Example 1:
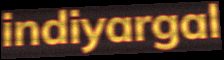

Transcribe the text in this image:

indiyargal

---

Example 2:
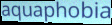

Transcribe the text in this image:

aquaphobia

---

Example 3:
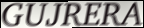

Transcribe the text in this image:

GUJRERA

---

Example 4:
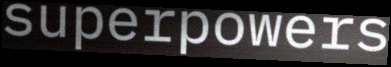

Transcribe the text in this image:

superpowers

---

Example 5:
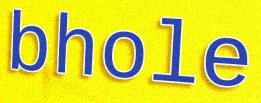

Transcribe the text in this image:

bhole